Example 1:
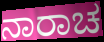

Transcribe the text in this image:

ನಾರಾಚ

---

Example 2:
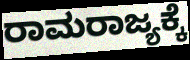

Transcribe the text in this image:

ರಾಮರಾಜ್ಯಕ್ಕೆ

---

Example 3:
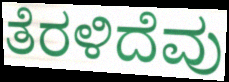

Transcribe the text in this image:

ತೆರಳಿದೆವು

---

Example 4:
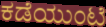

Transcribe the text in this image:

ಕಡೆಯುಂಟೆ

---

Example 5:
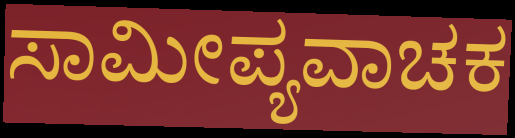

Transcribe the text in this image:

ಸಾಮೀಪ್ಯವಾಚಕ